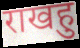
राखहु